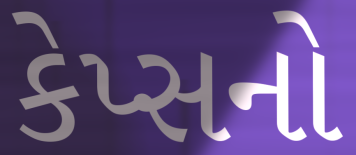
કેપ્સનો